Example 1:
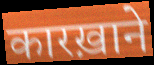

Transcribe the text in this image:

कारख़ाने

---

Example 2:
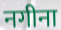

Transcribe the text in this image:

नगीना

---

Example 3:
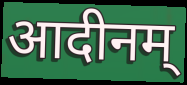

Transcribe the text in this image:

आदीनम्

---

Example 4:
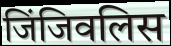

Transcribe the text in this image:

जिंजिवलिस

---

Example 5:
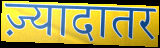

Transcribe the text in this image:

ज़्यादातर